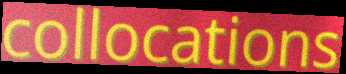
collocations